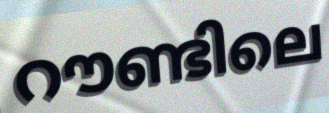
റൗണ്ടിലെ